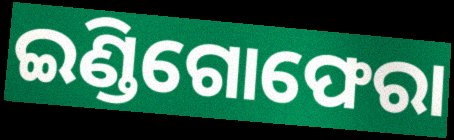
ଇଣ୍ଡିଗୋଫେରା